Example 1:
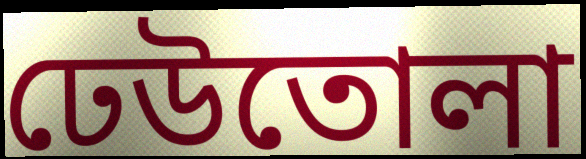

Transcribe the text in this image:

ঢেউতোলা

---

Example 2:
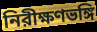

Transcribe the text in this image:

নিরীক্ষণভঙ্গি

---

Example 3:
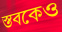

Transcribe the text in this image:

স্তবকেও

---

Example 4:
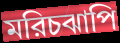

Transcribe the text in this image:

মরিচঝাপি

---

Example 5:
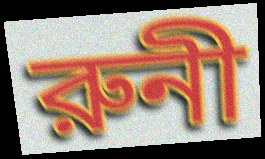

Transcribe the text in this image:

রুনী